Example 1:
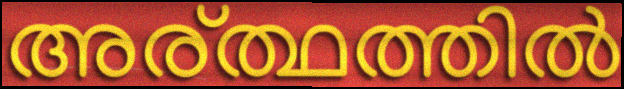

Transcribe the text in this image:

അര്ത്ഥത്തിൽ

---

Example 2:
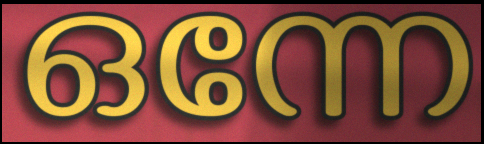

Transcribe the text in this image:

ഒന്നേ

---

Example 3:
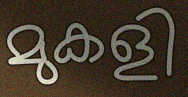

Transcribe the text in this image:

മുകളി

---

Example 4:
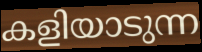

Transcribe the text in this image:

കളിയാടുന്ന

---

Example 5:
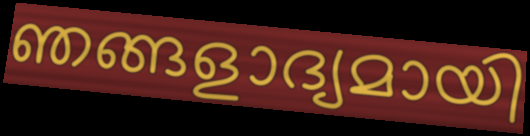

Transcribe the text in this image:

ഞങ്ങളാദ്യമായി